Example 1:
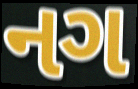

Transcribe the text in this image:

નગ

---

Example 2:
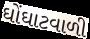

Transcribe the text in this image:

ઘોંઘાટવાળી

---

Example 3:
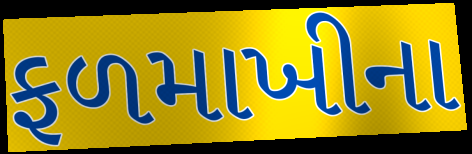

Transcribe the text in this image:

ફળમાખીના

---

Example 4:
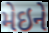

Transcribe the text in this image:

મેઇને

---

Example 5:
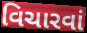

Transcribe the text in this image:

વિચારવાં